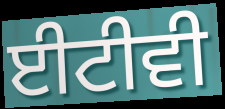
ਈਟੀਵੀ